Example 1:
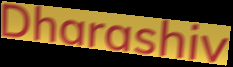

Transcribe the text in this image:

Dharashiv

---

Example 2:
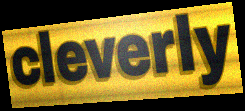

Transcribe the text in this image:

cleverly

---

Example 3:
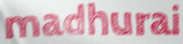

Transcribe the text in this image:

madhurai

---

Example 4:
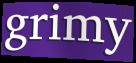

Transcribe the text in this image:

grimy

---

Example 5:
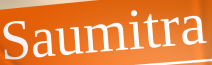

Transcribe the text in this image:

Saumitra